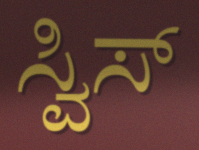
ಸ್ವಿಸ್